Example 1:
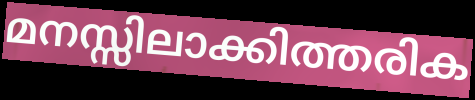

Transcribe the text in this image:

മനസ്സിലാക്കിത്തരിക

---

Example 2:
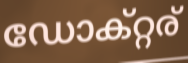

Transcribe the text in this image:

ഡോക്റ്റര്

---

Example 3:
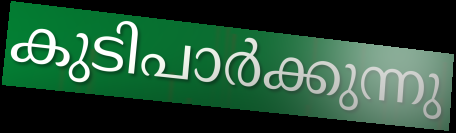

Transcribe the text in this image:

കുടിപാർക്കുന്നു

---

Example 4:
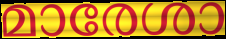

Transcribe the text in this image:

മാരേശാ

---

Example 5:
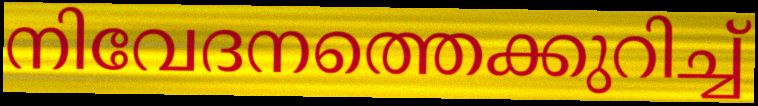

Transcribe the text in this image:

നിവേദനത്തെക്കുറിച്ച്